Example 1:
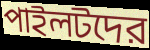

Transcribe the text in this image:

পাইলটদের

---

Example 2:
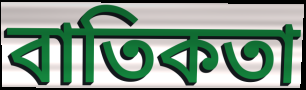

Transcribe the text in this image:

বাতিকতা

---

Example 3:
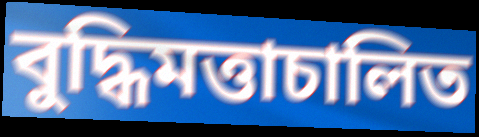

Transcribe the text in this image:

বুদ্ধিমত্তাচালিত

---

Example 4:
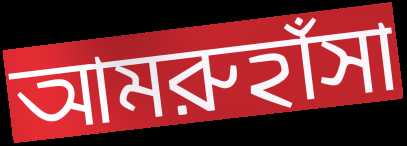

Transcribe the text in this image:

আমরুহাঁসা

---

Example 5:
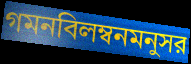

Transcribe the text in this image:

গমনবিলম্বনমনুসর